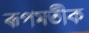
ৰূপমতীক